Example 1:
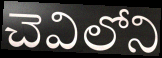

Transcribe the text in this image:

చెవిలోని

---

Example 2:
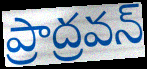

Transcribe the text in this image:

ప్రాద్రవన్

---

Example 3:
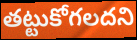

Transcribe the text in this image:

తట్టుకోగలదని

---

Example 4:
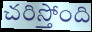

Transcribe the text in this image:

చరిస్తోంది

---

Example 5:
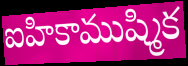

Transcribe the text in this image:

ఐహికాముష్మిక